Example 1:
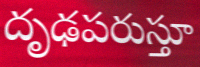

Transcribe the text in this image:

దృఢపరుస్తూ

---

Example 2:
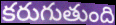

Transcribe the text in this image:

కరుగుతుంది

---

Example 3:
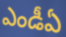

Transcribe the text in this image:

ఎండీఏ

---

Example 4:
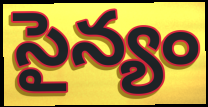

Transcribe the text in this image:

సైన్యం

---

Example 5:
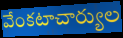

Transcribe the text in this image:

వేంకటాచార్యుల